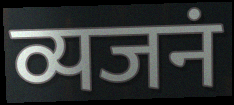
व्यजनं